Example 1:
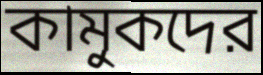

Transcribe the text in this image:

কামুকদের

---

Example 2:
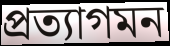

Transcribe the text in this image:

প্রত্যাগমন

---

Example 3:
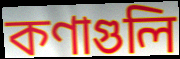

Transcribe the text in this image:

কণাগুলি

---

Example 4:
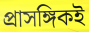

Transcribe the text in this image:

প্রাসঙ্গিকই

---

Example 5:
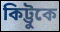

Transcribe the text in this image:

কিট্টুকে